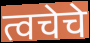
त्वचेचे